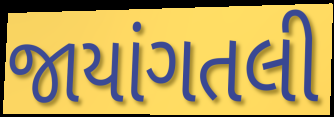
જાયાંગતલી